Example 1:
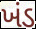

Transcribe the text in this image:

ખંડ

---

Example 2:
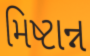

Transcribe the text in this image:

મિષ્ટાન્ન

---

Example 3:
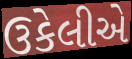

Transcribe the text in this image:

ઉકેલીએ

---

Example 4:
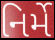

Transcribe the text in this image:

નિર્મે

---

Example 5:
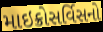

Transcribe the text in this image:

માઇક્રોસર્વિસનો